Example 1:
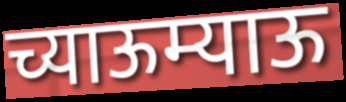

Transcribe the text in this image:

च्याऊम्याऊ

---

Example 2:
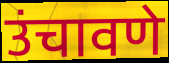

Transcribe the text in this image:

उंचावणे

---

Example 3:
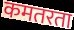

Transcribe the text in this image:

कमतरता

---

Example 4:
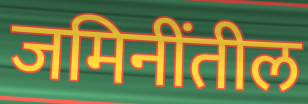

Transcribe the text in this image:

जमिनींतील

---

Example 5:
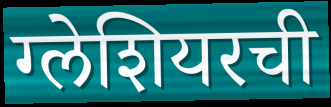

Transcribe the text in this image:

ग्लेशियरची